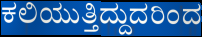
ಕಲಿಯುತ್ತಿದ್ದುದರಿಂದ